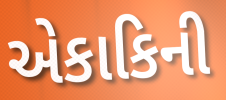
એકાકિની